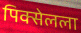
पिक्सेलला